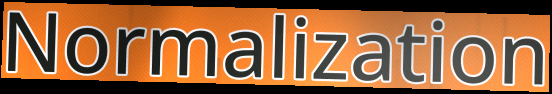
Normalization